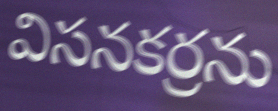
విసనకర్రను